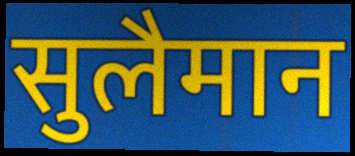
सुलैमान